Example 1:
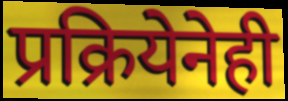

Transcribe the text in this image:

प्रक्रियेनेही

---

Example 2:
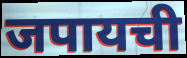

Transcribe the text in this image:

जपायची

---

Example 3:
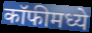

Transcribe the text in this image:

कॉफीमध्ये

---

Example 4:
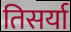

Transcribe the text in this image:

तिसर्या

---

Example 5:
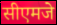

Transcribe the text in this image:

सीएमजे